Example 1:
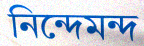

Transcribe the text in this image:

নিন্দেমন্দ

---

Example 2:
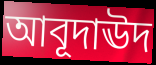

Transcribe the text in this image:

আবূদাঊদ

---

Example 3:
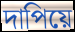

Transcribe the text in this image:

দাপিয়ে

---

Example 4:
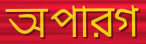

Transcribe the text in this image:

অপারগ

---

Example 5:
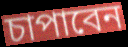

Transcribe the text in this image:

চাপাবেন